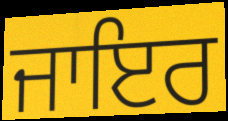
ਜਾਇਰ